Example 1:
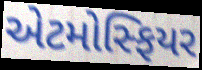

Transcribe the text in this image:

એટમોસ્ફિયર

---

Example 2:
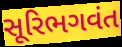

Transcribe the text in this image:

સૂરિભગવંત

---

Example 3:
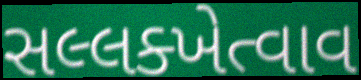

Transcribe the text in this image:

સલ્લક્ખેત્વાવ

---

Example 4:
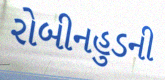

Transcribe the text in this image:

રોબીનહુડની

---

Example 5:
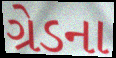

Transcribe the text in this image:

ગ્રેડના